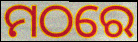
ମଠରେ